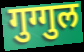
गुग्गुल